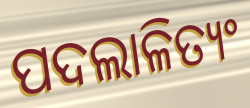
ପଦଲାଳିତ୍ୟଂ